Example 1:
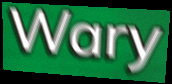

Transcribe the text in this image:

Wary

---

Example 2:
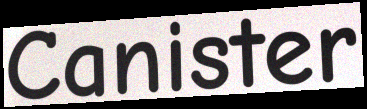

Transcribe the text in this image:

Canister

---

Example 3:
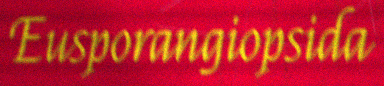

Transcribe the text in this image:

Eusporangiopsida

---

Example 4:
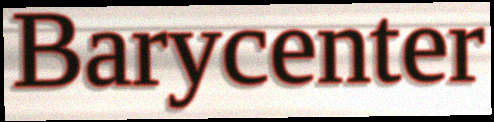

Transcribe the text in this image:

Barycenter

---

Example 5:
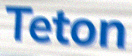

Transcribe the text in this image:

Teton